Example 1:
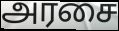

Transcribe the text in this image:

அரசை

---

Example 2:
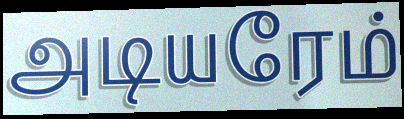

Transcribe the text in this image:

அடியரேம்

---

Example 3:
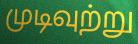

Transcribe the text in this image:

முடிவுற்று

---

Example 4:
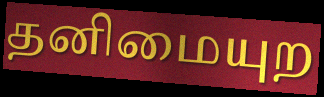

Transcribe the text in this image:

தனிமையுற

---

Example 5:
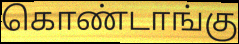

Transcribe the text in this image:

கொண்டாங்கு